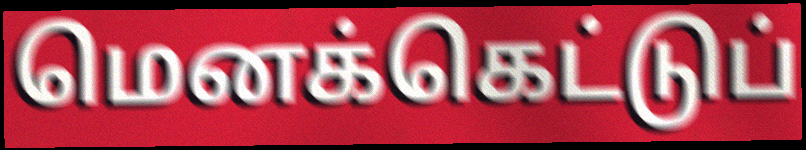
மெனக்கெட்டுப்